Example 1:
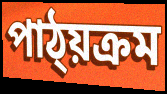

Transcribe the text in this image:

পাঠ্য়ক্ৰম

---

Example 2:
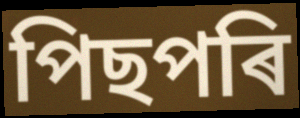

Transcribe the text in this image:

পিছপৰি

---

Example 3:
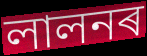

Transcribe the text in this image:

লালনৰ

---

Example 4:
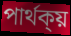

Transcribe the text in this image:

পাৰ্থক্য়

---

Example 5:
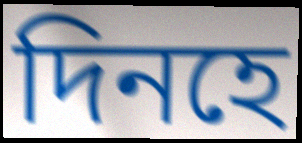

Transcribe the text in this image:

দিনহে